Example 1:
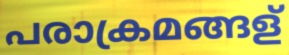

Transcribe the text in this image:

പരാക്രമങ്ങള്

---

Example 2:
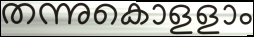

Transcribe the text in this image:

തന്നുകൊളളാം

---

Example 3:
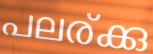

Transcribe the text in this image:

പലര്ക്കു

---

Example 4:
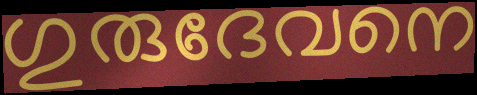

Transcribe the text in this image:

ഗുരുദേവനെ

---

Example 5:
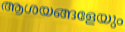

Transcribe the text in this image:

ആശയങ്ങളേയും